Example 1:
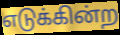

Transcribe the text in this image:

எடுக்கின்ற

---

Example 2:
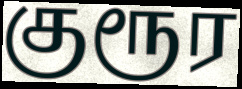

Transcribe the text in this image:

குரூர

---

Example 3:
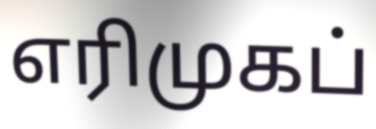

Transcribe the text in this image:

எரிமுகப்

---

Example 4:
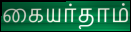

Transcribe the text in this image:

கையர்தாம்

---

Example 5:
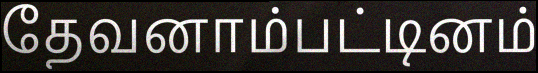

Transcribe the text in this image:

தேவனாம்பட்டினம்